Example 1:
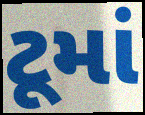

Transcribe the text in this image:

ટૂમાં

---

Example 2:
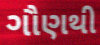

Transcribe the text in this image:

ગૌણથી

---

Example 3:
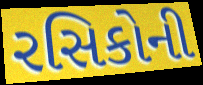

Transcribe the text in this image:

રસિકોની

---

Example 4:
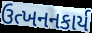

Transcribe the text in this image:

ઉત્ખનનકાર્ય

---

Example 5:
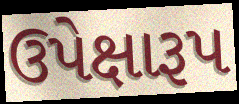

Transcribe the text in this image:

ઉપેક્ષારૂપ